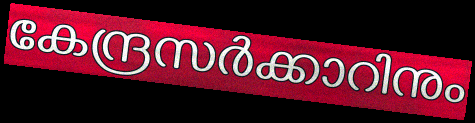
കേന്ദ്രസർക്കാറിനും